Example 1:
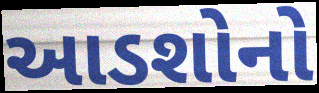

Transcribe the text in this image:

આડશોનો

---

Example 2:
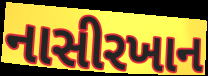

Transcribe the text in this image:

નાસીરખાન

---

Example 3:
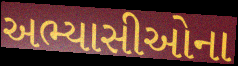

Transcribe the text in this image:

અભ્યાસીઓના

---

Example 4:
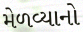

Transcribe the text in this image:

મેળવ્યાનો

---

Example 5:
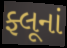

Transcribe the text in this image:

ફ્લૂનાં